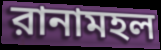
রানামহল